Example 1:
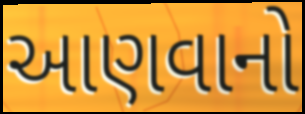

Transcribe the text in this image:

આણવાનો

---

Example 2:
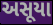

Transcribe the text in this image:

અસૂયા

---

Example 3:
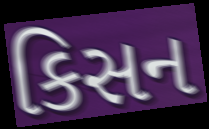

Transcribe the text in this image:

કિસન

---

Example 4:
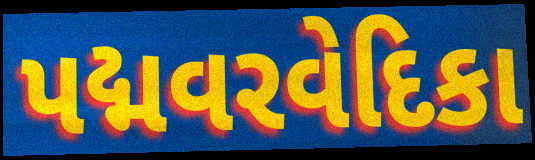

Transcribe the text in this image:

પદ્મવરવેદિકા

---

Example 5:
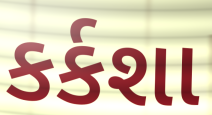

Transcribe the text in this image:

કર્કશા